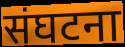
संघटना